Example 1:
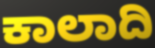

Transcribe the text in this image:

ಕಾಲಾದಿ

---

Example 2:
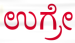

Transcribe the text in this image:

ಉಗ್ರೇ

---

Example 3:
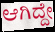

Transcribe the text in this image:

ಆಗಿದ್ದೇ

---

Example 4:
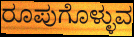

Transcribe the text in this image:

ರೂಪುಗೊಳ್ಳುವ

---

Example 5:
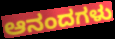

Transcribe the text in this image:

ಆನಂದಗಳು